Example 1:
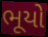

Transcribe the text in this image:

ભૂયો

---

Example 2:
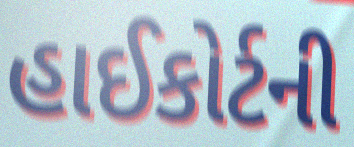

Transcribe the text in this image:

હાઈકોર્ટની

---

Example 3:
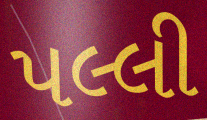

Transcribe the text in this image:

પલ્લી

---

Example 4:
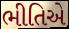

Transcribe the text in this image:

ભીતિએ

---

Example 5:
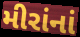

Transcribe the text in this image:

મીરાંનાં